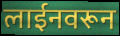
लाईनवरून